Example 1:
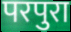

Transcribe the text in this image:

परपुरा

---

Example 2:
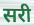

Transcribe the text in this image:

सरी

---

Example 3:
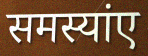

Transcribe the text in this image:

समस्यांए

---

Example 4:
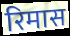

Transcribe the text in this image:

रिमास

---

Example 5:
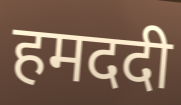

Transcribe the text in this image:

हमददी